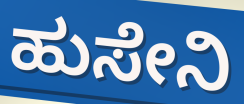
ಹುಸೇನಿ